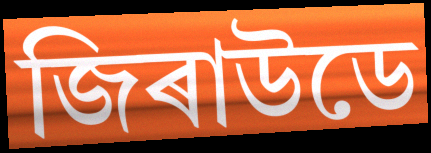
জিৰাউডে